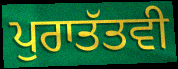
ਪੁਰਾਤੱਤਵੀ